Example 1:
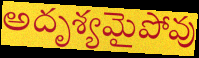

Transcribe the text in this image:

అదృశ్యమైపోవు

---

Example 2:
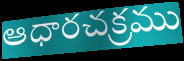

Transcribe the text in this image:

ఆధారచక్రము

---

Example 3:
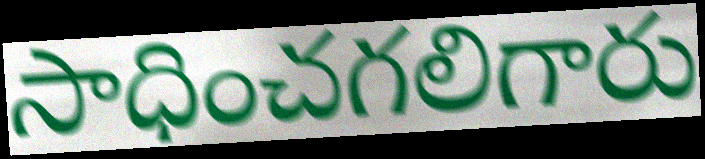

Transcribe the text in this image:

సాధించగలిగారు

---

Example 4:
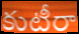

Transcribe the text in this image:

కుటీరా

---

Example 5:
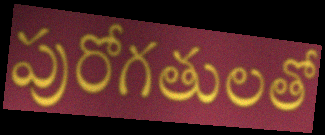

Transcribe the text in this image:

పురోగతులతో